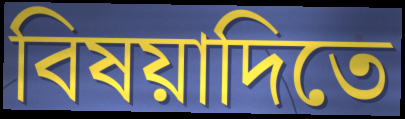
বিষয়াদিতে